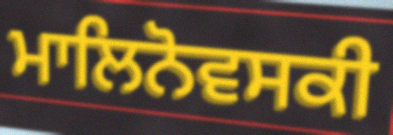
ਮਾਲਿਨੋਵਸਕੀ